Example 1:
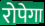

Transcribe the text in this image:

रोपेगा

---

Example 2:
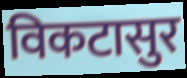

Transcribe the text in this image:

विकटासुर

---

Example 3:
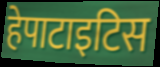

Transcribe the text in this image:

हेपाटाइटिस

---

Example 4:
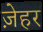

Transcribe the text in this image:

ज़ेहर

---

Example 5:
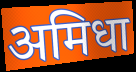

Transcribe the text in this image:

अमिधा